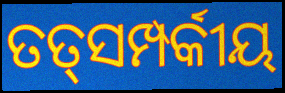
ତତ୍‍ସମ୍ପର୍କୀୟ